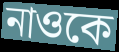
নাওকে